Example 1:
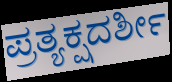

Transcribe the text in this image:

ಪ್ರತ್ಯಕ್ಷದರ್ಶೀ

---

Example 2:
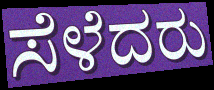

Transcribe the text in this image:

ಸೆಳೆದರು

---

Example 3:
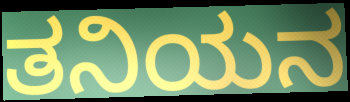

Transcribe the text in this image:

ತನಿಯನ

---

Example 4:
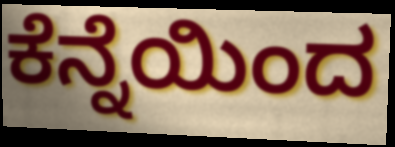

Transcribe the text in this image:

ಕೆನ್ನೆಯಿಂದ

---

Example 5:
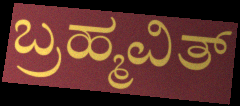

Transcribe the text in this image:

ಬ್ರಹ್ಮವಿತ್